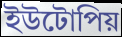
ইউটোপিয়